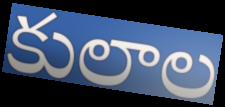
కులాల